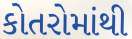
કોતરોમાંથી